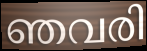
ഞവരി